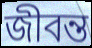
জীবন্ত